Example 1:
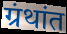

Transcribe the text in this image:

ग्रंथांत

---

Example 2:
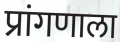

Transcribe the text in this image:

प्रांगणाला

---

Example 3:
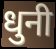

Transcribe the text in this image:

धुनी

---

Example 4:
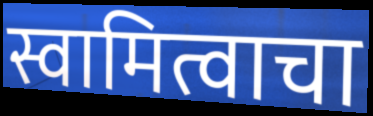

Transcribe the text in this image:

स्वामित्वाचा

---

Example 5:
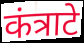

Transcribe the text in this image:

कंत्राटे